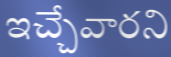
ఇచ్చేవారని